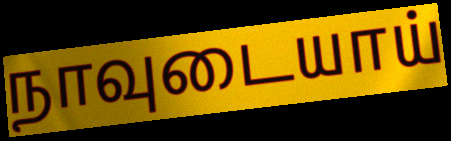
நாவுடையாய்